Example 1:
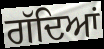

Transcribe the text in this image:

ਗੱਦਿਆਂ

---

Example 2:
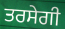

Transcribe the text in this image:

ਤਰਸੇਗੀ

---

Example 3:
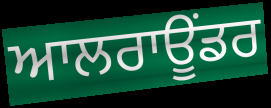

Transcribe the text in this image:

ਆਲਰਾਊਂਡਰ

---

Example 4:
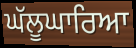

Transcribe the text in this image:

ਘੱਲੂਘਾਰਿਆ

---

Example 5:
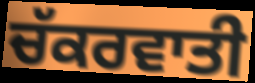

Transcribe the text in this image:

ਚੱਕਰਵਾਤੀ